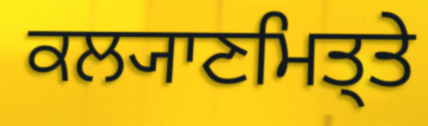
ਕਲ੍ਯਾਣਮਿਤ੍ਤੇ